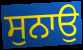
ਸੁਨਾਉ